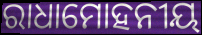
ରାଧାମୋହନୀୟ